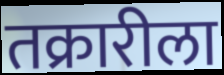
तक्रारीला